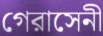
গেরাসেনী